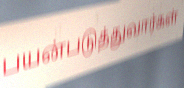
பயன்படுத்துவார்கள்